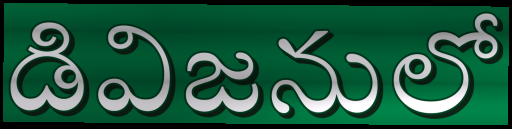
డివిజనులో